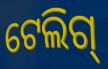
ଟେଲିଗ୍